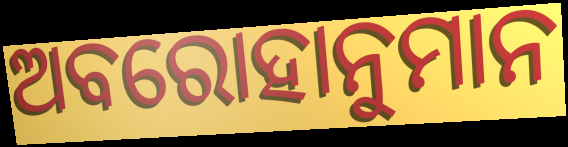
ଅବରୋହାନୁମାନ